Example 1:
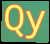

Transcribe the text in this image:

Qy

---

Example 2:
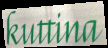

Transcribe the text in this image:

kuttina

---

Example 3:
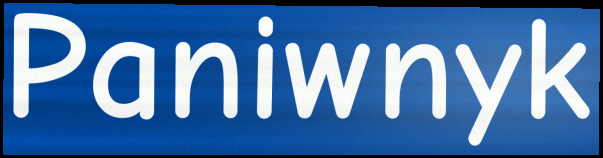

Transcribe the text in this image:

Paniwnyk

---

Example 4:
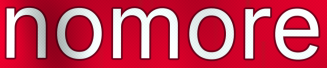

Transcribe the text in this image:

nomore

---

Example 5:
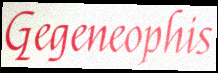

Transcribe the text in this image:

Gegeneophis